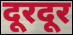
दूरदूर